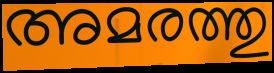
അമരത്തു